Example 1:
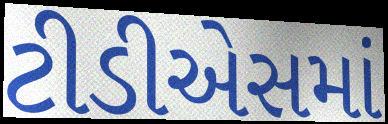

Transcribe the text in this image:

ટીડીએસમાં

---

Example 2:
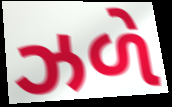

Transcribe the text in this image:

ઝળે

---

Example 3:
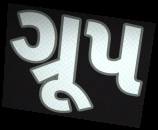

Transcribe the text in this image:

ગ્રૂપ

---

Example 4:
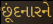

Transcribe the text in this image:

છૂંદનારને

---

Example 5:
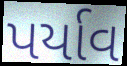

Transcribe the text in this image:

પર્યાવ